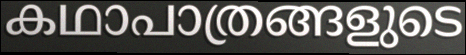
കഥാപാത്രങ്ങളുടെ